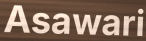
Asawari